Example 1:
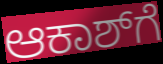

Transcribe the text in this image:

ಆಕಾಶ್‌ಗೆ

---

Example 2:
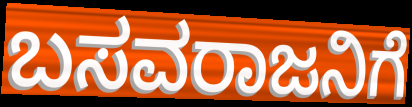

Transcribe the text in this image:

ಬಸವರಾಜನಿಗೆ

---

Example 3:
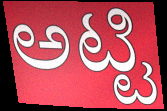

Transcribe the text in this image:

ಅಟ್ಟಿ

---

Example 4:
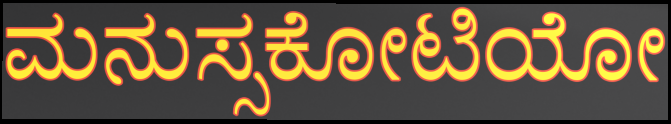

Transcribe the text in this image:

ಮನುಸ್ಸಕೋಟಿಯೋ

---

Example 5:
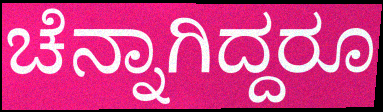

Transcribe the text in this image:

ಚೆನ್ನಾಗಿದ್ದರೂ